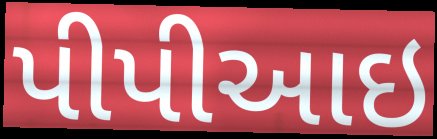
પીપીઆઇ